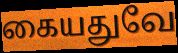
கையதுவே